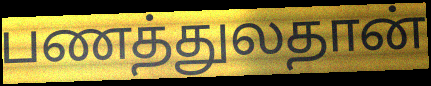
பணத்துலதான்